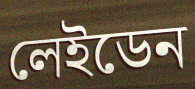
লেইডেন